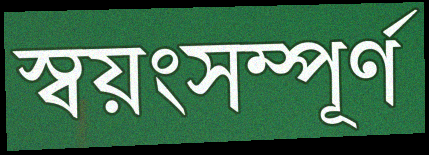
স্বয়ংসম্পূর্ণ